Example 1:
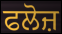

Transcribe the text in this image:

ਫਲੋਜ਼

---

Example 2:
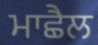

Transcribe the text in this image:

ਮਾਛੈਲ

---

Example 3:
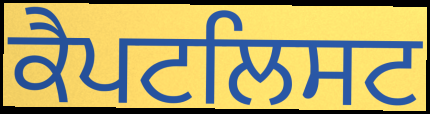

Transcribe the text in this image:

ਕੈਪਟਲਿਸਟ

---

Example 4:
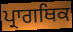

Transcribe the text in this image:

ਪ੍ਰਾਗਥਿਕ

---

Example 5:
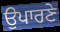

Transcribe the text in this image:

ਉਪਾਰਣੇ